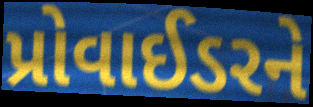
પ્રોવાઈડરને